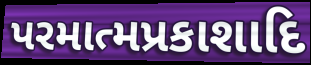
પરમાત્મપ્રકાશાદિ